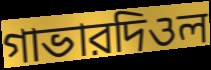
গাভারদিওল